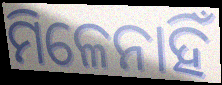
ମିଳେନାହିଁ